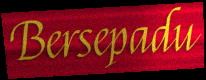
Bersepadu